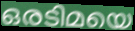
ഒരടിമയെ